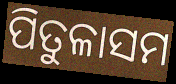
ପିତୁଳାସମ